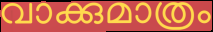
വാക്കുമാത്രം